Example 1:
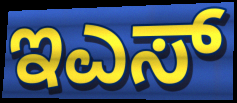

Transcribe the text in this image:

ಇಎಸ್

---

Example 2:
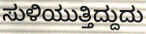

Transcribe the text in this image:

ಸುಳಿಯುತ್ತಿದ್ದುದು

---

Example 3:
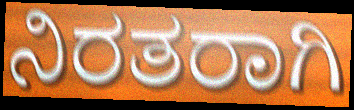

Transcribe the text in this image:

ನಿರತರಾಗಿ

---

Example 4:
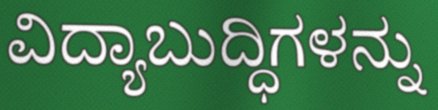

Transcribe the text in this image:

ವಿದ್ಯಾಬುದ್ಧಿಗಳನ್ನು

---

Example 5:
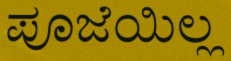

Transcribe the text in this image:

ಪೂಜೆಯಿಲ್ಲ